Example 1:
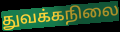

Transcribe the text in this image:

துவக்கநிலை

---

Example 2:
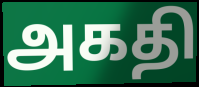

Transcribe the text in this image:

அகதி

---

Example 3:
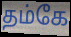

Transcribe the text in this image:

தம்கே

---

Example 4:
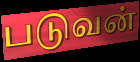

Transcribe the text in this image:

படுவன்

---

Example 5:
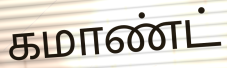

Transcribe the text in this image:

கமாண்ட்